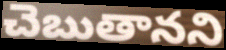
చెబుతానని